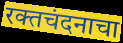
रक्तचंदनाचा